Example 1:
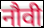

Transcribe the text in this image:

नौवी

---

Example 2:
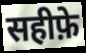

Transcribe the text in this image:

सहीफ़े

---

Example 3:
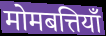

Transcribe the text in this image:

मोमबत्तियाँ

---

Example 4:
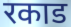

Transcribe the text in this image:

रकाड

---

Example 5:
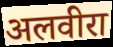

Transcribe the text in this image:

अलवीरा